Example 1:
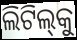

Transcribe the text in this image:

ଲିଟିଲ୍‌କୁ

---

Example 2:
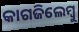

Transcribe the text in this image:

କାଗଜିଲେମ୍ବୁ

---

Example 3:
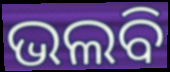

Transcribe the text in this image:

ଭଲବି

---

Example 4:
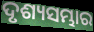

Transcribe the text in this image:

ଦୃଶ୍ୟସମ୍ଭାର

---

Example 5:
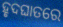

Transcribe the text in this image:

ହୃଦଘାତରେ